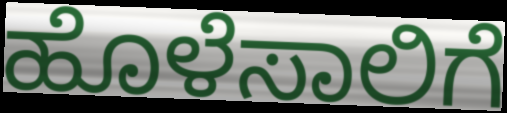
ಹೊಳೆಸಾಲಿಗೆ